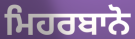
ਮਿਹਰਬਾਨੋ